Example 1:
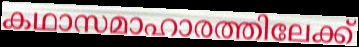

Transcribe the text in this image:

കഥാസമാഹാരത്തിലേക്ക്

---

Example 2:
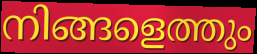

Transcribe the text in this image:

നിങ്ങളെത്തും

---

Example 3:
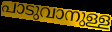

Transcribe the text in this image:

പാടുവാനുള്ള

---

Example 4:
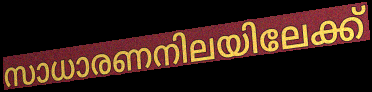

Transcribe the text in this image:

സാധാരണനിലയിലേക്ക്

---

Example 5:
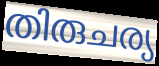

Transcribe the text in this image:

തിരുചര്യ